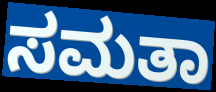
ಸಮತಾ